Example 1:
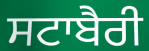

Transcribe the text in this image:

ਸਟਾਬੈਰੀ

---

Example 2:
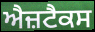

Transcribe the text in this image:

ਐਜ਼ਟੈਕਸ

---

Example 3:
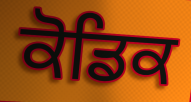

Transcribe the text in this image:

ਕੋਡਿਕ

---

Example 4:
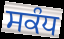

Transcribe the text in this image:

ਸਕੰਧ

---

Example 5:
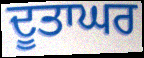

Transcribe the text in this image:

ਦੂਤਾਘਰ